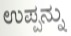
ಉಪ್ಪನ್ನು